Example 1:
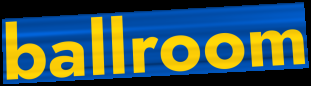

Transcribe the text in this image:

ballroom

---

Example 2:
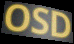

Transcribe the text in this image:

OSD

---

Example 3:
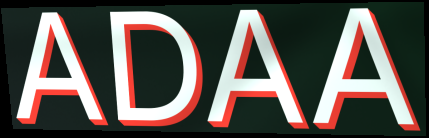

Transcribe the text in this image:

ADAA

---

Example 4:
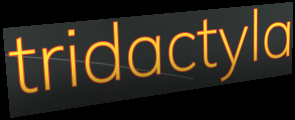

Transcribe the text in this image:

tridactyla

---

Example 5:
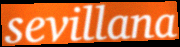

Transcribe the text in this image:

sevillana